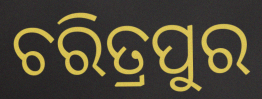
ଚରିତ୍ରପୁର